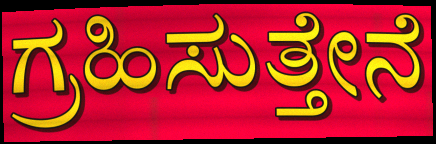
ಗ್ರಹಿಸುತ್ತೇನೆ